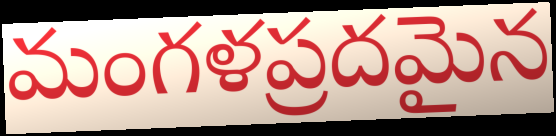
మంగళప్రదమైన